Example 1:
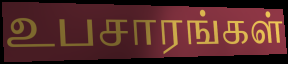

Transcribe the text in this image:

உபசாரங்கள்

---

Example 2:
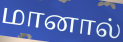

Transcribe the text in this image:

மானால்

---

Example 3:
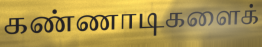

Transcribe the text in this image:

கண்ணாடிகளைக்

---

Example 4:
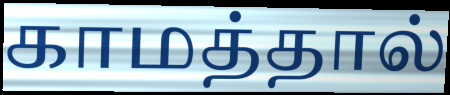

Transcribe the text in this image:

காமத்தால்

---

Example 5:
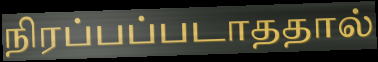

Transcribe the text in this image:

நிரப்பப்படாததால்